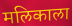
मलिकाला